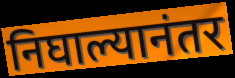
निघाल्यानंतर